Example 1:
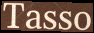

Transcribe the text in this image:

Tasso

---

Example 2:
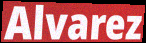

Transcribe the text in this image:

Alvarez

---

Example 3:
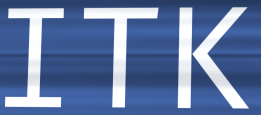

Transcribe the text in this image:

ITK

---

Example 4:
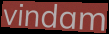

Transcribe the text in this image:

vindam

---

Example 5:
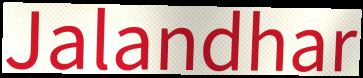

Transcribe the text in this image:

Jalandhar